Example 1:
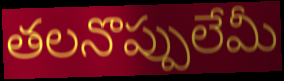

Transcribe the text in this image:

తలనొప్పులేమీ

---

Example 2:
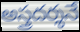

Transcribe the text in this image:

అస్త్రదర్శనే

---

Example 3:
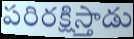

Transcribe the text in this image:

పరిరక్షిస్తాడు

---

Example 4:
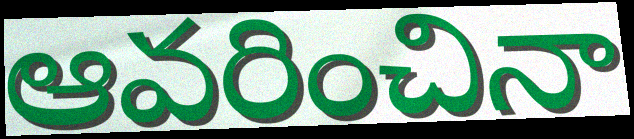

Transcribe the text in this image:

ఆవరించినా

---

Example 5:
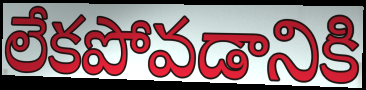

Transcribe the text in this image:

లేకపోవడానికి